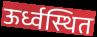
ऊर्ध्वस्थित